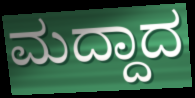
ಮದ್ದಾದ